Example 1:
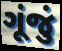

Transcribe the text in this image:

ગૂંજું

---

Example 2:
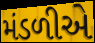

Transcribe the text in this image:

મંડળીએ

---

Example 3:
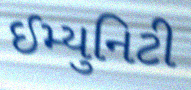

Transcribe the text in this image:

ઈમ્યુનિટી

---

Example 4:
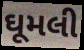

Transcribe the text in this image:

ઘૂમલી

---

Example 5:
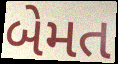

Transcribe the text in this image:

બેમત